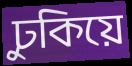
ঢুকিয়ে